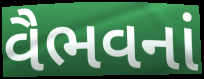
વૈભવનાં